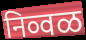
निव्‍वळ